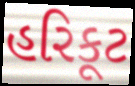
હરિકૂટ